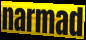
narmad